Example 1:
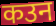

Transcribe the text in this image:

कउन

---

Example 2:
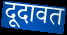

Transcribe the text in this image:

दूदावत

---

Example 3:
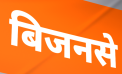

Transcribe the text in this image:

बिजनसे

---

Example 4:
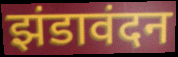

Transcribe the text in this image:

झंडावंदन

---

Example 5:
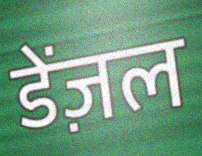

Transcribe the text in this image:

डेंज़ल